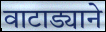
वाटाड्याने